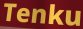
Tenku